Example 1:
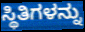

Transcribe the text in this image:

ಸ್ಥಿತಿಗಳನ್ನು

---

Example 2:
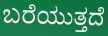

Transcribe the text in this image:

ಬರೆಯುತ್ತದೆ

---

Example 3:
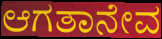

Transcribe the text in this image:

ಆಗತಾನೇವ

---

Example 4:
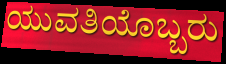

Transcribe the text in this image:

ಯುವತಿಯೊಬ್ಬರು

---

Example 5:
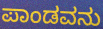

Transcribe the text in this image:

ಪಾಂಡವನು